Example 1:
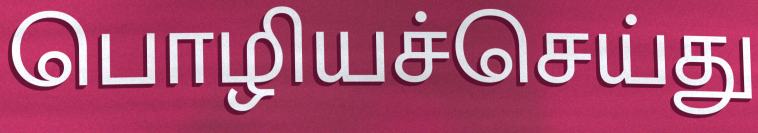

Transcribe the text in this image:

பொழியச்செய்து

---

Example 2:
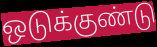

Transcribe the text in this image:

ஒடுக்குண்டு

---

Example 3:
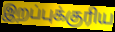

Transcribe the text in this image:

இறப்புக்குரிய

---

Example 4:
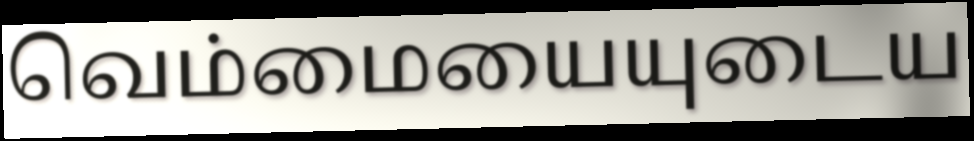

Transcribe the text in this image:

வெம்மையையுடைய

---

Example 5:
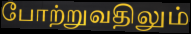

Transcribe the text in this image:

போற்றுவதிலும்